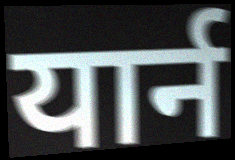
यार्न